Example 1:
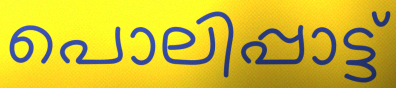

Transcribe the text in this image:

പൊലിപ്പാട്ട്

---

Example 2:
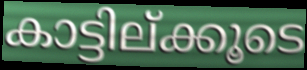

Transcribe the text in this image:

കാട്ടില്ക്കൂടെ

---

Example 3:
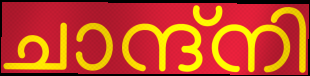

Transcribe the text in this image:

ചാന്ദ്നി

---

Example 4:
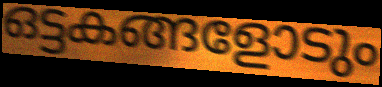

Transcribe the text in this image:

ഒട്ടകങ്ങളോടും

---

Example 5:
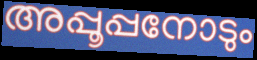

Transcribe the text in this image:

അപ്പൂപ്പനോടും